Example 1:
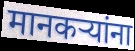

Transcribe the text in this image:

मानकऱ्यांना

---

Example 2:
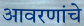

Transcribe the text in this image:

आवरणांचे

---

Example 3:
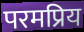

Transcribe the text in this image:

परमप्रिय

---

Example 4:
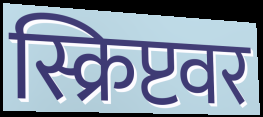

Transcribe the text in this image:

स्क्रिप्टवर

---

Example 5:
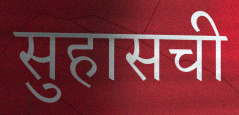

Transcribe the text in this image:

सुहासची